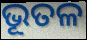
ଭୂତଳ